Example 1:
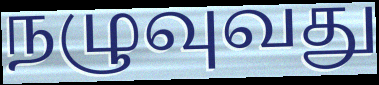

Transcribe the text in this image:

நழுவுவது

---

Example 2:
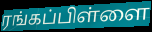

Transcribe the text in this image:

ரங்கப்பிள்ளை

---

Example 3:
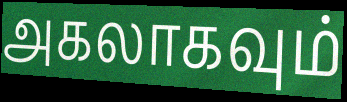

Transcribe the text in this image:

அகலாகவும்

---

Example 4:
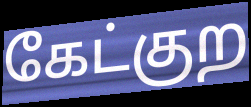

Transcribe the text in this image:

கேட்குற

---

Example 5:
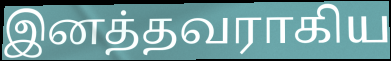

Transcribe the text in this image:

இனத்தவராகிய